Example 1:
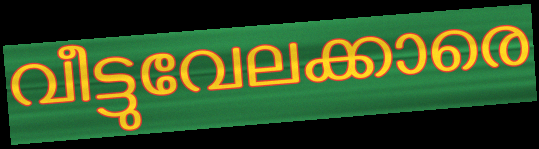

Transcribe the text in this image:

വീട്ടുവേലക്കാരെ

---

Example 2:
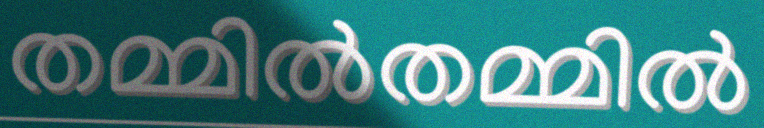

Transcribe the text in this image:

തമ്മിൽതമ്മിൽ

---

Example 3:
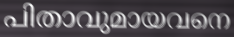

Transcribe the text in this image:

പിതാവുമായവനെ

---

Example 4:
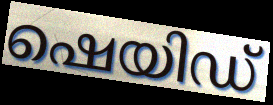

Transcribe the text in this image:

ഷെയിഡ്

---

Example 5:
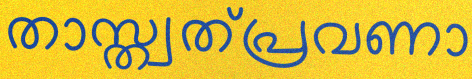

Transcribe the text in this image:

താസ്ത്വത്പ്രവണാ